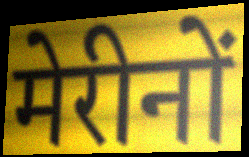
मेरीनों